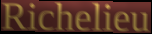
Richelieu